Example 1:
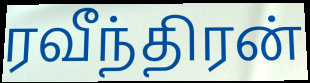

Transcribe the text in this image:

ரவீந்திரன்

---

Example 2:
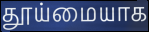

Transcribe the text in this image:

தூய்மையாக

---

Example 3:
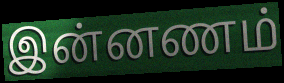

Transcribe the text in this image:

இன்னணம்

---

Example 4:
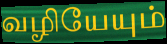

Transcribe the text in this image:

வழியேயும்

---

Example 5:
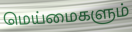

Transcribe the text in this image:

மெய்மைகளும்